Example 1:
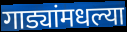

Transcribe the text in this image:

गाड्यांमधल्या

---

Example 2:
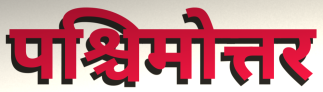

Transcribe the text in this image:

पश्चिमोत्तर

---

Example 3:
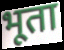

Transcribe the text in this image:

भूता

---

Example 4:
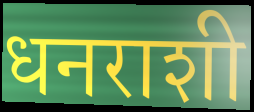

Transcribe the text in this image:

धनराशी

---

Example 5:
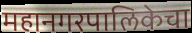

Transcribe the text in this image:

महानगरपालिकेचा